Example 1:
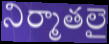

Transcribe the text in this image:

నిర్మాతలై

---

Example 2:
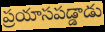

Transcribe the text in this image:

ప్రయాసపడ్డాడు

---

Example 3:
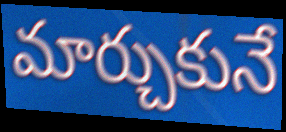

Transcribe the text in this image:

మార్చుకునే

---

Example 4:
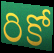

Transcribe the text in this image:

రికో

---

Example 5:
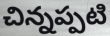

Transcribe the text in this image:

చిన్నప్పటి